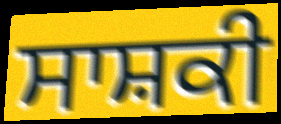
ਸਾਸ਼ਕੀ